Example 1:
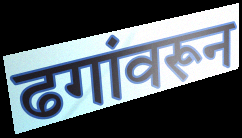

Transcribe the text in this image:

ढगांवरून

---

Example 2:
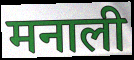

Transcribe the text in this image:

मनाली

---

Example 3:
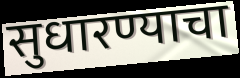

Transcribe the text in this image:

सुधारण्याचा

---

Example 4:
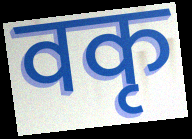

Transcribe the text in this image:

वकृ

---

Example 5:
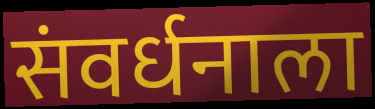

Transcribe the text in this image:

संवर्धनाला